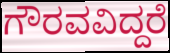
ಗೌರವವಿದ್ದರೆ